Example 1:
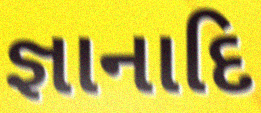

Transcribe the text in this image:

જ્ઞાનાદિ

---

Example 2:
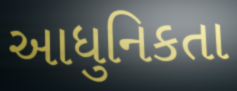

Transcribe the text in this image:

આધુનિકતા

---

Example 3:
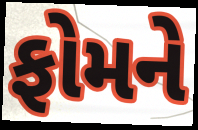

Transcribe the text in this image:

ફોમને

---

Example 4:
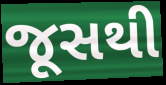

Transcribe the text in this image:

જૂસથી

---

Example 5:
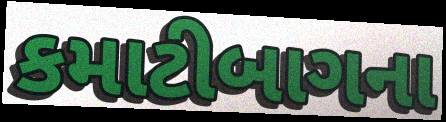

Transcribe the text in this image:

કમાટીબાગના